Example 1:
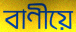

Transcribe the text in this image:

বাণীয়ে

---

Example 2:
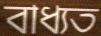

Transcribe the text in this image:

বাধ্যত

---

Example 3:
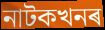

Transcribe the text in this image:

নাটকখনৰ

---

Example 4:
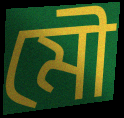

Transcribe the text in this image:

মৌ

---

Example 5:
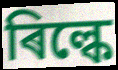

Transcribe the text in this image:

ৰিল্কে